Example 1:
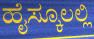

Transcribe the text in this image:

ಹೈಸ್ಕೂಲಲ್ಲಿ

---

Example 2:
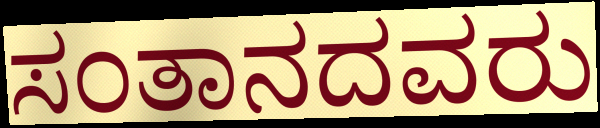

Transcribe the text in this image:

ಸಂತಾನದವರು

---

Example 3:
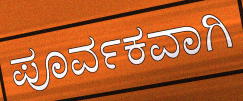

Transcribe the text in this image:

ಪೂರ್ವಕವಾಗಿ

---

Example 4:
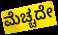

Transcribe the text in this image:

ಮೆಚ್ಚದೇ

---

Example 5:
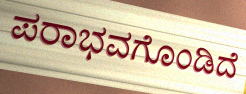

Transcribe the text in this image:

ಪರಾಭವಗೊಂಡಿದೆ